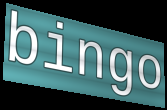
bingo